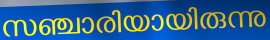
സഞ്ചാരിയായിരുന്നു